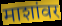
माशांवर